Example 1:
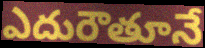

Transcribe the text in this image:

ఎదురౌతూనే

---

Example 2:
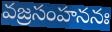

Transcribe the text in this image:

వజ్రసంహననః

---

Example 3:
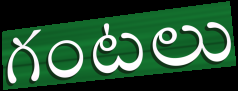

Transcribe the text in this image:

గంటలు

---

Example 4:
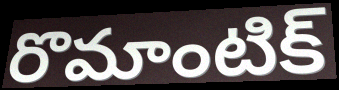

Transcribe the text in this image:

రొమాంటిక్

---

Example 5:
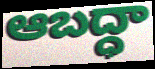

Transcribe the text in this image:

ఆబద్ధా